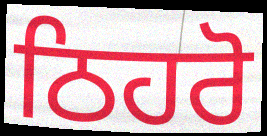
ਠਿਹਰੋ